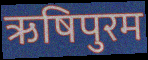
ऋषिपुरम